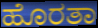
ಹೊರತಾ